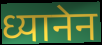
ध्यानेन